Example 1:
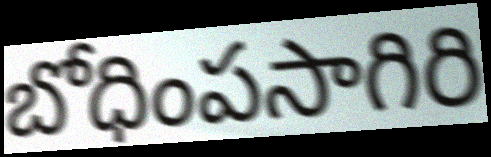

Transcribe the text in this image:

బోధింపసాగిరి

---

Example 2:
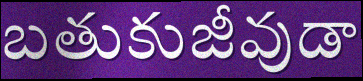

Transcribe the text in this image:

బతుకుజీవుడా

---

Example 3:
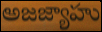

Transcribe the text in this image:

అజజ్యాహు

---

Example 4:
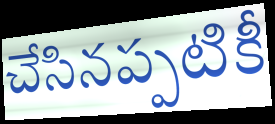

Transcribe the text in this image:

చేసినప్పటికీ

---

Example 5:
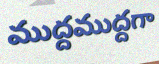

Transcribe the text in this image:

ముద్దముద్దగా